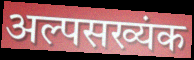
अल्पसख्यंक